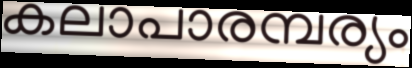
കലാപാരമ്പര്യം